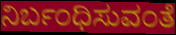
ನಿರ್ಬಂಧಿಸುವಂತೆ